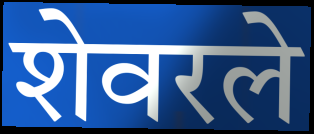
शेवरले